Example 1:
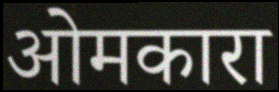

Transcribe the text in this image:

ओमकारा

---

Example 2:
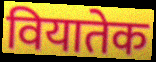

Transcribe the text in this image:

वियातेक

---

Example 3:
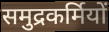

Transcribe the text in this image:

समुद्रकर्मियों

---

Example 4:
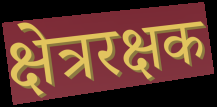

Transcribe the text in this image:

क्षेत्ररक्षक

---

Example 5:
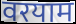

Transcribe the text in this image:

वरयाम